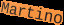
Martino